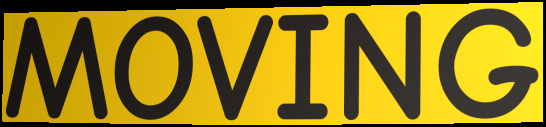
MOVING